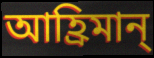
আহ্রিমান্